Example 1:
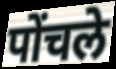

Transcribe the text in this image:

पोंचले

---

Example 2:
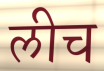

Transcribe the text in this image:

लीच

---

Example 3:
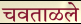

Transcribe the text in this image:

चवताळले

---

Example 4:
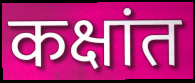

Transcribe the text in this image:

कक्षांत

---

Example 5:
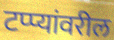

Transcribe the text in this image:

टप्प्यांवरील